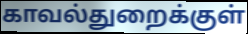
காவல்துறைக்குள்